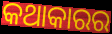
କଥାକାରର